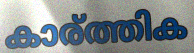
കാര്ത്തിക